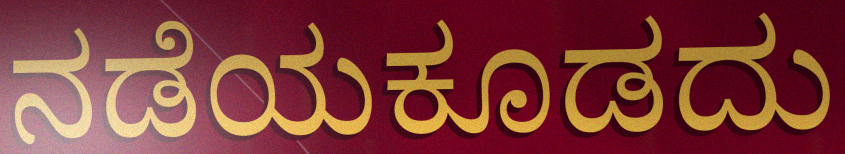
ನಡೆಯಕೂಡದು